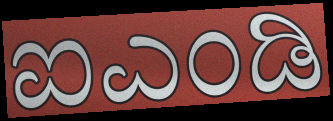
ಐಎಂಡಿ